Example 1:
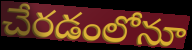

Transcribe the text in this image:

చేరడంలోనూ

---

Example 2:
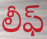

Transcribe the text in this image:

లీఫ్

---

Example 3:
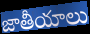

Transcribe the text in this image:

జాతీయాలు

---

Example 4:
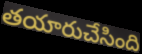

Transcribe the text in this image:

తయారుచేసింది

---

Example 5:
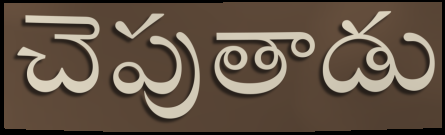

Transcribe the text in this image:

చెపుతాడు